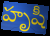
హృషీ